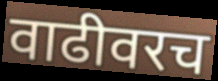
वाढीवरच